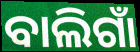
ବାଲିଗାଁ